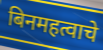
बिनमहत्वाचे